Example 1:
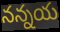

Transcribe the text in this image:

నన్నయ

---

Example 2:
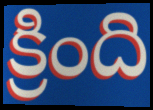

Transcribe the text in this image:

క్రింది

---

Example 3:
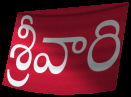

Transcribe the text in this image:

శ్రీవారి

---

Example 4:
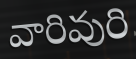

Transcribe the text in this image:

వారివురి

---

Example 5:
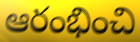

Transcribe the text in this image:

ఆరంభించి